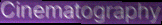
Cinematography